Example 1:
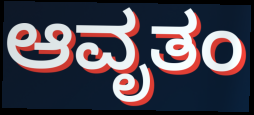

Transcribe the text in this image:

ಆವೃತಂ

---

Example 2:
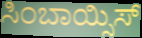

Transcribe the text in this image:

ಸಿಂಬಾಯ್ಸಿಸ್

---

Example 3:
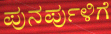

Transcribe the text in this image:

ಪುನರ್ಪುಳಿಗೆ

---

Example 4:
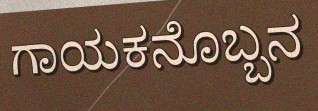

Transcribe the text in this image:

ಗಾಯಕನೊಬ್ಬನ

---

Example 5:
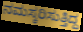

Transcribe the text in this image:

ನಮಸ್ಕರಿಸುತ್ತಿದ್ದ